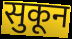
सुकून